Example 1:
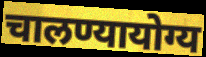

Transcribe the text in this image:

चालण्यायोग्य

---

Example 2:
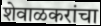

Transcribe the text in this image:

शेवाळकरांचा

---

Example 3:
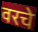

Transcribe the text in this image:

वरचे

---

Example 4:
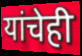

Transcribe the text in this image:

यांचेही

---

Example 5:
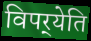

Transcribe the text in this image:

विपर्येति